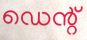
ഡെന്റ്